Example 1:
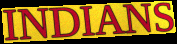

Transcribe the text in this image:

INDIANS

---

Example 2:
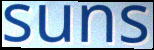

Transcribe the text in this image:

suns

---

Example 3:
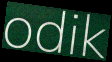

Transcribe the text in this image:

odik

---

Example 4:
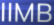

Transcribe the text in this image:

IIMB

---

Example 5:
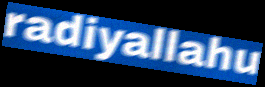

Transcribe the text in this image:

radiyallahu